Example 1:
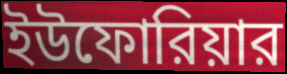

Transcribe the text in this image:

ইউফোরিয়ার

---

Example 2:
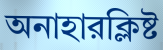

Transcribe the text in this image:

অনাহারক্লিষ্ট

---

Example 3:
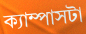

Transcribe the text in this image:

ক্যাম্পাসটা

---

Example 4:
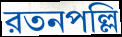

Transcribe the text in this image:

রতনপল্লি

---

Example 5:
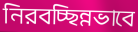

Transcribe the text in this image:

নিরবচ্ছিন্নভাবে